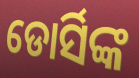
ଡୋର୍ସିଙ୍କ